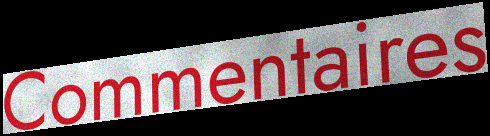
Commentaires